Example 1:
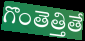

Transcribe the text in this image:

గొంతెత్తితే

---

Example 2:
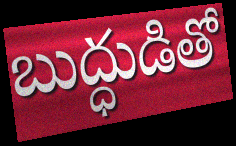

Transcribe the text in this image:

బుద్ధుడితో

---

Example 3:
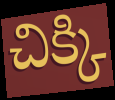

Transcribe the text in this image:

చిక్కి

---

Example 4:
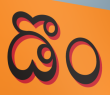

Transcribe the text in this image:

డొం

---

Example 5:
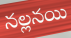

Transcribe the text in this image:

నల్లనయి